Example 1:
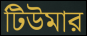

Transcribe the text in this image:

টিউমার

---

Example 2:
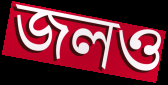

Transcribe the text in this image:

জলও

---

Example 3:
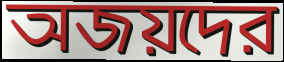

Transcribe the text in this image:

অজয়দের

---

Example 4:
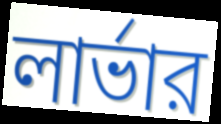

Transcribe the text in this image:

লার্ভার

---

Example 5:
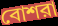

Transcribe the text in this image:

বোশরা